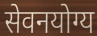
सेवनयोग्य